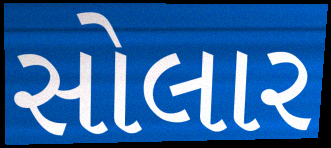
સોલાર